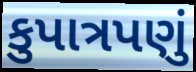
કુપાત્રપણું